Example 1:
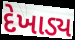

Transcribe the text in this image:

દેખાડ્ય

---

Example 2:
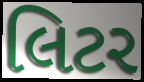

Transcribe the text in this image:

લિટર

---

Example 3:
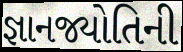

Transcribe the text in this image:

જ્ઞાનજ્યોતિની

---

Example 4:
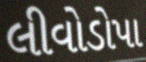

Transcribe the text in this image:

લીવોડોપા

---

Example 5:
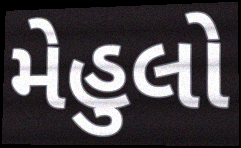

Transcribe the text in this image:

મેહુલો